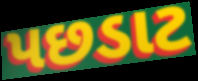
પછડાટ